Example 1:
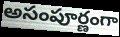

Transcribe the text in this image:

అసంపూర్ణంగా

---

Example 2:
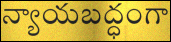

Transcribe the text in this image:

న్యాయబద్ధంగా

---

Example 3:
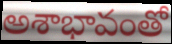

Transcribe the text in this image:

అశాభావంతో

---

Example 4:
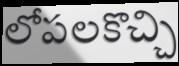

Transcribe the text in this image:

లోపలకొచ్చి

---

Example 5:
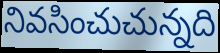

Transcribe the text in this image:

నివసించుచున్నది